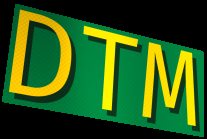
DTM